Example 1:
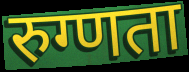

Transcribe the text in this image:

रुग्णता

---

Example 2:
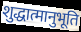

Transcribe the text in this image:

शुद्धात्मानुभूति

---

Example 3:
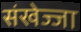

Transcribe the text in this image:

संखेज्जा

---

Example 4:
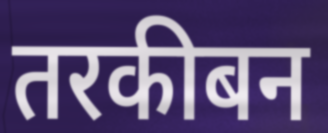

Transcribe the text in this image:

तरकीबन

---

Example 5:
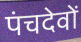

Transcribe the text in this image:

पंचदेवों